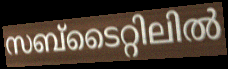
സബ്ടൈറ്റിലിൽ